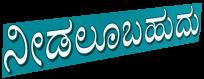
ನೀಡಲೂಬಹುದು